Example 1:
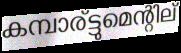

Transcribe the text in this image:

കമ്പാര്ട്ടുമെന്റില്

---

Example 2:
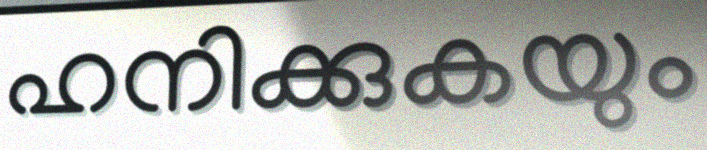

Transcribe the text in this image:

ഹനിക്കുകയും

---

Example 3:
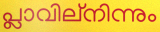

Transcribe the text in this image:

പ്ലാവില്നിന്നും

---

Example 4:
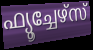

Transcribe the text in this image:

ഫ്യൂച്ചേഴ്സ്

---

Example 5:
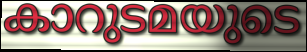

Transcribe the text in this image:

കാറുടമയുടെ